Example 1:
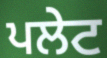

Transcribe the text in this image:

ਪਲੇਟ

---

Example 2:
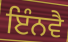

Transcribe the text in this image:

ਇੰਨਵੈ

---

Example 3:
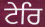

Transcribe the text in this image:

ਟੇਰਿ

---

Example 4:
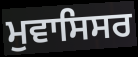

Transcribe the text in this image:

ਮੁਵਾਸਿਸਰ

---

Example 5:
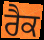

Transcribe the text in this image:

ਰੈਕ